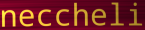
neccheli